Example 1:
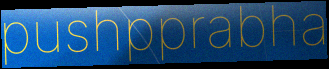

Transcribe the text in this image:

pushpprabha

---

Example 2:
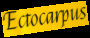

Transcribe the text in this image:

Ectocarpus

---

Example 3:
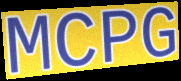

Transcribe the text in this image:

MCPG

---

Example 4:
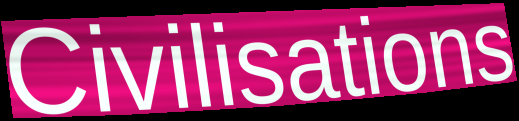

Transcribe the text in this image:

Civilisations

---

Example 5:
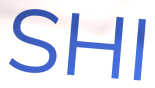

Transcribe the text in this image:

SHI